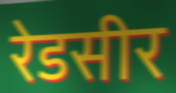
रेडसीर